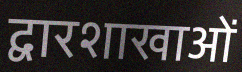
द्वारशाखाओं